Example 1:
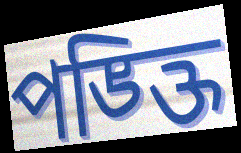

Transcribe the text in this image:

পঙ্ক্তি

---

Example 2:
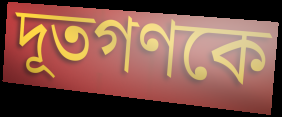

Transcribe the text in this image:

দূতগণকে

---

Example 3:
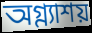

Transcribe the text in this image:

অগ্ন্যাশয়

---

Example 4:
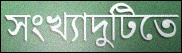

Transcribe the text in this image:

সংখ্যাদুটিতে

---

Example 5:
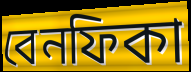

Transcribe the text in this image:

বেনফিকা